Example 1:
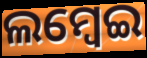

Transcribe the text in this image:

ଲମ୍ଵେଇ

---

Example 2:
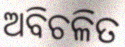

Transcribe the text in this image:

ଅବିଚଳିତ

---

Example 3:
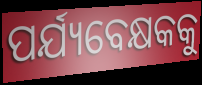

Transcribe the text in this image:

ପର୍ଯ୍ୟବେକ୍ଷକକୁ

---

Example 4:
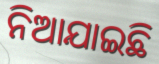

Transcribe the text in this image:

ନିଆଯାଇଛି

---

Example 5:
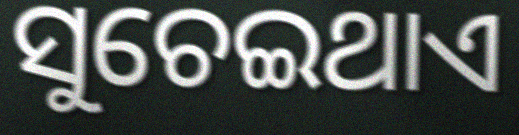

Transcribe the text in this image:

ସୁଚେଇଥାଏ